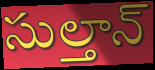
సుల్తాన్